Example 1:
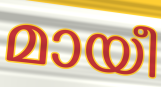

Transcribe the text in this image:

മായീ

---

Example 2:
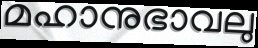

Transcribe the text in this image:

മഹാനുഭാവലു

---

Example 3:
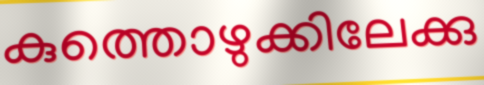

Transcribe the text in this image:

കുത്തൊഴുക്കിലേക്കു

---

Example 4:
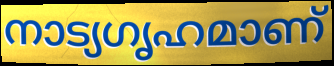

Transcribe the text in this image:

നാട്യഗൃഹമാണ്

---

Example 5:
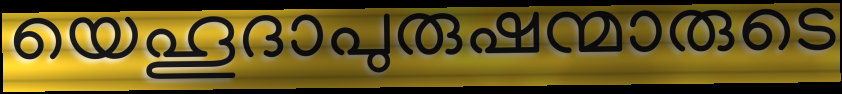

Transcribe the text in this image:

യെഹൂദാപുരുഷന്മാരുടെ